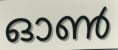
ഓൺ